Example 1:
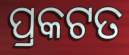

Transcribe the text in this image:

ପ୍ରକଟତ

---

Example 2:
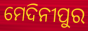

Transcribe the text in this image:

ମେଦିନୀପୁର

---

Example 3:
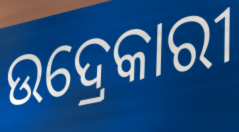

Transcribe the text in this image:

ଉଦ୍ରେକାରୀ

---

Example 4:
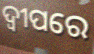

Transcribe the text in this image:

ଦ୍ୱୀପରେ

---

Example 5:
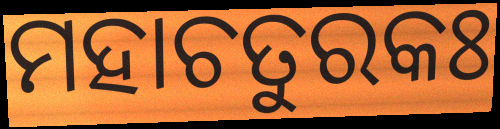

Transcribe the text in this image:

ମହାଚତୁରକଃ